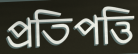
প্রতিপত্তি